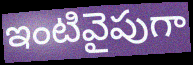
ఇంటివైపుగా